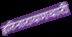
हरिनारायणचारी